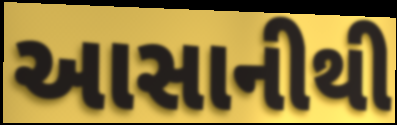
આસાનીથી